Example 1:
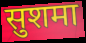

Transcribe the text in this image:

सुशमा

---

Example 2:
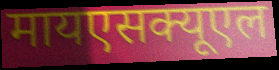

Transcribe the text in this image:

मायएसक्यूएल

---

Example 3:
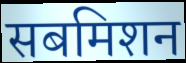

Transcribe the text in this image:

सबमिशन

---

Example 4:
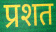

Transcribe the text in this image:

प्रशत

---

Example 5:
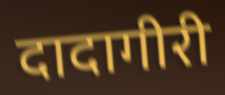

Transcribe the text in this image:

दादागीरी